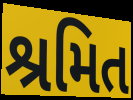
શ્રમિત